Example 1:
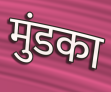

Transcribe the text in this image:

मुंडका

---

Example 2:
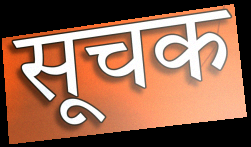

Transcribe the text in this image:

सूचक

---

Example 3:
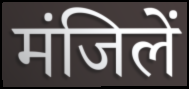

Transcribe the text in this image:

मंजिलें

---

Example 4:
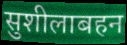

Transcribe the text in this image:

सुशीलाबहन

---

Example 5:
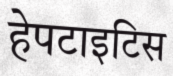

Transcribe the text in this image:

हेपटाइटिस